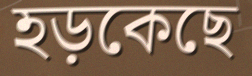
হড়কেছে